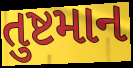
તુષ્ટમાન